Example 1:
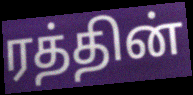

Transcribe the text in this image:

ரத்தின்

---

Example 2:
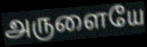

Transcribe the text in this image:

அருளையே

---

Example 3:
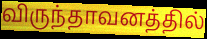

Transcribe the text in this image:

விருந்தாவனத்தில்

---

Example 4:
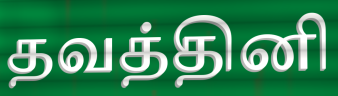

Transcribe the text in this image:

தவத்தினி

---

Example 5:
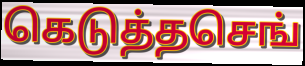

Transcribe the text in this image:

கெடுத்தசெங்